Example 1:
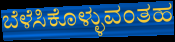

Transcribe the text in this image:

ಬೆಳೆಸಿಕೊಳ್ಳುವಂತಹ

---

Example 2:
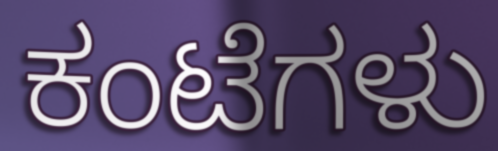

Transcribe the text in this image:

ಕಂಟೆಗಳು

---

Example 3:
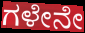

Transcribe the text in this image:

ಗಳೇನೇ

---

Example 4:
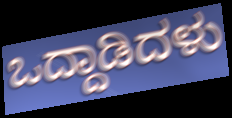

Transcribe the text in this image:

ಒದ್ದಾಡಿದಳು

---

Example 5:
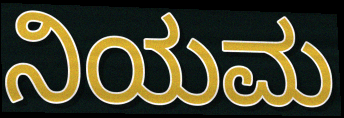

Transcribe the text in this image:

ನಿಯಮ